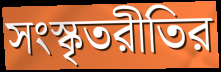
সংস্কৃতরীতির